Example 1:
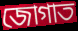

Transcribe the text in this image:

জোগাত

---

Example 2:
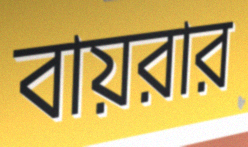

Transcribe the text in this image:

বায়রার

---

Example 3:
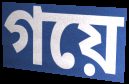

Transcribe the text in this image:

গয়ে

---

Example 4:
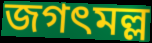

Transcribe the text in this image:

জগৎমল্ল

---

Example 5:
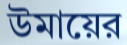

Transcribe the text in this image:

উমায়ের